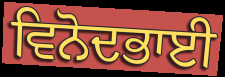
ਵਿਨੋਦਭਾਈ